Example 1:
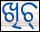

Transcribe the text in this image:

ଖିଚ୍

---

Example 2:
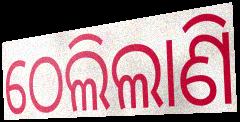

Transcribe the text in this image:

ଠେଲିଲାଣି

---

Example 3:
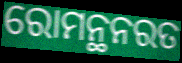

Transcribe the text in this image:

ରୋମନ୍ଥନରତ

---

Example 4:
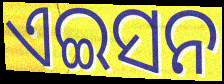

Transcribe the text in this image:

ଏଇସନ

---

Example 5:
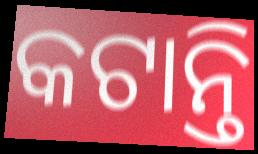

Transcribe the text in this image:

କଟାନ୍ତି